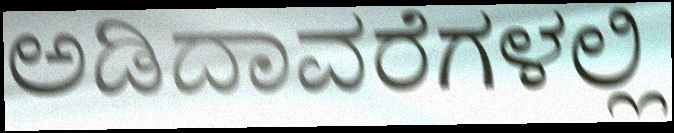
ಅಡಿದಾವರೆಗಳಲ್ಲಿ